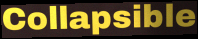
Collapsible